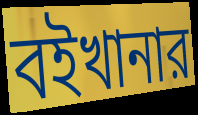
বইখানার